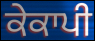
ਕੇਕਾਪੀ